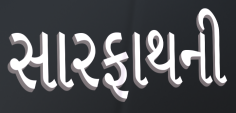
સારફાથની